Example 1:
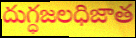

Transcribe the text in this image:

దుగ్ధజలధిజాత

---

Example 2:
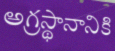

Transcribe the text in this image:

అగ్రస్థానానికి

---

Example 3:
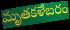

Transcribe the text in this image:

మృతకళేబరం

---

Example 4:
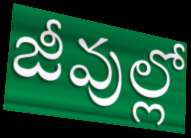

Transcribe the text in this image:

జీవుల్లో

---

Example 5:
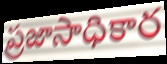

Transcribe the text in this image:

ప్రజాసాధికార